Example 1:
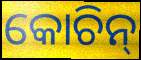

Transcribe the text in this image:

କୋଚିନ୍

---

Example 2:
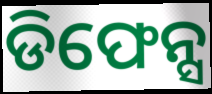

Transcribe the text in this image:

ଡିଫେନ୍ସ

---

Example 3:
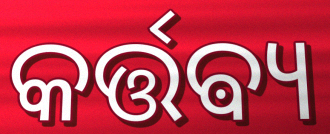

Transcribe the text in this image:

କର୍ତ୍ତଵ୍ୟ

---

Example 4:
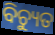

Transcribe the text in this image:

ବିଚ୍ୟୁତ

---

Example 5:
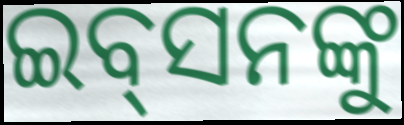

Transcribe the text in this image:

ଇବ୍‌ସନଙ୍କୁ